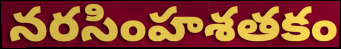
నరసింహశతకం